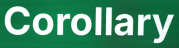
Corollary